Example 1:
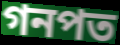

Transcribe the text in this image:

গনপত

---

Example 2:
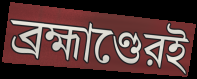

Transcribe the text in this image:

ব্রহ্মাণ্ডেরই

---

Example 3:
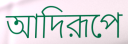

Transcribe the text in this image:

আদিরূপে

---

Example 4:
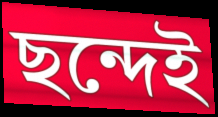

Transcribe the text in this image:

ছন্দেই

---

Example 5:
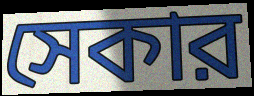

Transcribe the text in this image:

সেকার